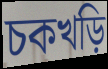
চকখড়ি